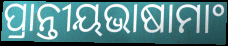
ପ୍ରାନ୍ତୀୟଭାଷାମାଂ